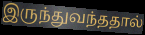
இருந்துவந்ததால்